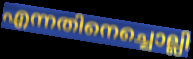
എന്നതിനെച്ചൊല്ലി